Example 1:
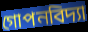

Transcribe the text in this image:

গোপনবিদ্যা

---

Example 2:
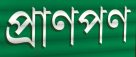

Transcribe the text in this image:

প্রাণপণ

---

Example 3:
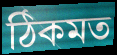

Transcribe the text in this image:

ঠিকমত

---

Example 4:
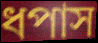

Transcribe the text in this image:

ধপাস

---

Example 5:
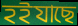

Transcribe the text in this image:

হইযাছে